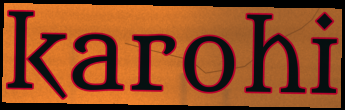
karohi